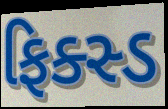
ફિક્સ્ડ